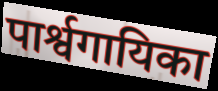
पार्श्वगायिका